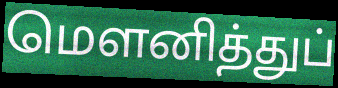
மெளனித்துப்